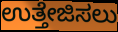
ಉತ್ತೇಜಿಸಲು